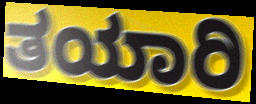
ತಯಾರಿ